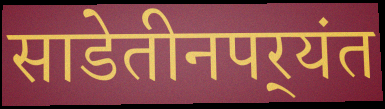
साडेतीनपर्यंत